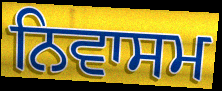
ਨਿਵਾਸਮ